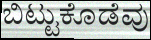
ಬಿಟ್ಟುಕೊಡೆವು